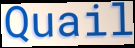
Quail